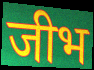
जीभ